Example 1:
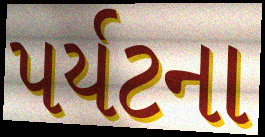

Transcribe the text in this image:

પર્યટના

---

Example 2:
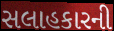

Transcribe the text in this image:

સલાહકારની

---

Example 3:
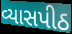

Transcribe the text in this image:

વ્યાસપીઠ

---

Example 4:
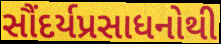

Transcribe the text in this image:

સૌંદર્યપ્રસાધનોથી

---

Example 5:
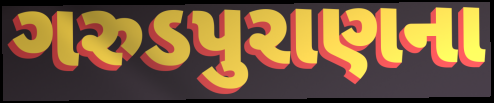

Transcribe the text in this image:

ગરુડપુરાણના